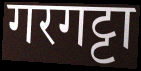
गरगट्टा